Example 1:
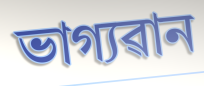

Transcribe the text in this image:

ভাগ্যৱান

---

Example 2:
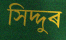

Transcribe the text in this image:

সিদ্দুৰ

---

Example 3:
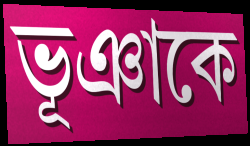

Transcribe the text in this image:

ভূঞাকে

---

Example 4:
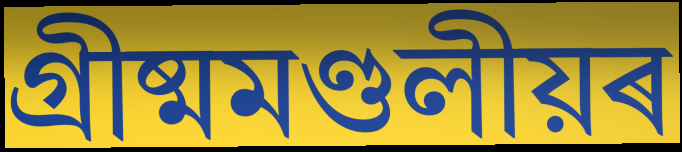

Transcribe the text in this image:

গ্ৰীষ্মমণ্ডলীয়ৰ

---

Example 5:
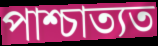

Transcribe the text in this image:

পাশ্চাত্যত